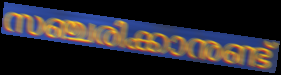
സഞ്ചരിക്കാനുണ്ട്